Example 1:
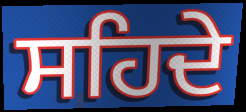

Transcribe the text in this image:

ਸਹਿਦੇ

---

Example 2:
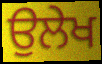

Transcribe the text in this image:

ਉਲੇਖ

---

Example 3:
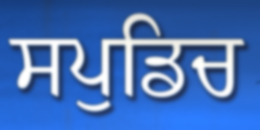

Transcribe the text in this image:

ਸਪੁਡਿਚ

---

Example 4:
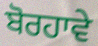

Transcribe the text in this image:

ਬੋਰਹਾਵੇ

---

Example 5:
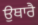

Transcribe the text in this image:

ਉਥਾਰੈ